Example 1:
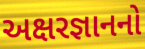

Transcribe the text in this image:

અક્ષરજ્ઞાનનો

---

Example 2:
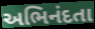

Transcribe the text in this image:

અભિનંદતા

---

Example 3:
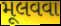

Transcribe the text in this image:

મૂલવવા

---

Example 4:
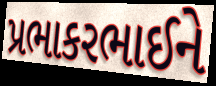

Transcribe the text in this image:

પ્રભાકરભાઈને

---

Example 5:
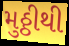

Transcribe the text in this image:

મુઠ્ઠીથી